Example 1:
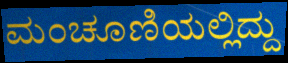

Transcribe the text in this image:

ಮಂಚೂಣಿಯಲ್ಲಿದ್ದು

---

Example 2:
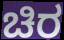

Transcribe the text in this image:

ಚಿರ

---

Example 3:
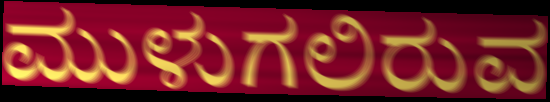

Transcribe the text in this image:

ಮುಳುಗಲಿರುವ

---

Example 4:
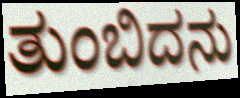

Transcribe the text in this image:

ತುಂಬಿದನು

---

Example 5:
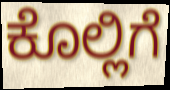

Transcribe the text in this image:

ಕೊಲ್ಲಿಗೆ